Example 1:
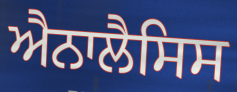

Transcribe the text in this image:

ਐਨਾਲੈਸਿਸ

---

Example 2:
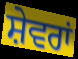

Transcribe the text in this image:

ਸ਼ੇਵਰਾਂ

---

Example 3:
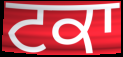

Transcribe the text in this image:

ਟਕਾ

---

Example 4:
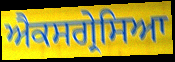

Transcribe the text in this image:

ਐਕਸਗ੍ਰੇਸਿਆ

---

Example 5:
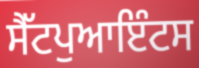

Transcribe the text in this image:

ਸੈੱਟਪੁਆਇੰਟਸ